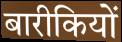
बारीकियों